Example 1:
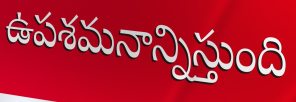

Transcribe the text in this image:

ఉపశమనాన్నిస్తుంది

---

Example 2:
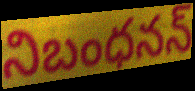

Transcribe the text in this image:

నిబంధనన్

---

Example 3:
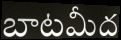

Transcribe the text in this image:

బాటమీద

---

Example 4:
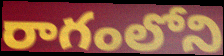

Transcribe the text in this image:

రాగంలోని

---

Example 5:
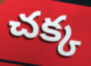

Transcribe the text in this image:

చక్క